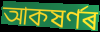
আকষৰ্ণৰ